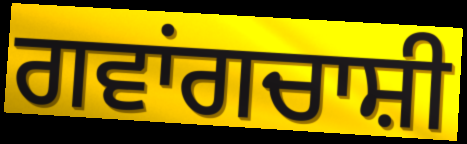
ਗਵਾਂਗਚਾਸ਼ੀ